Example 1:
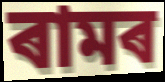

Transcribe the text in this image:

ৰামৰ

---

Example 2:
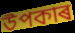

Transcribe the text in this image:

উপকাৰ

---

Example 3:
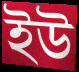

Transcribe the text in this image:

ইউ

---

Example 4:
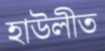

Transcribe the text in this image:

হাউলীত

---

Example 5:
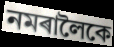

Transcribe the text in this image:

নমৰালৈকে